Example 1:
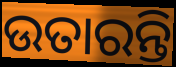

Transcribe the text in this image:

ଉତାରନ୍ତି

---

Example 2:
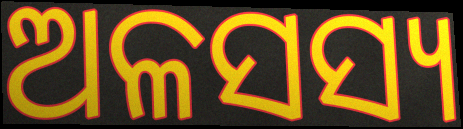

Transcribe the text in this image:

ଅଳସସ୍ୟ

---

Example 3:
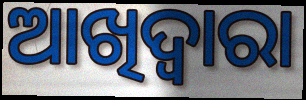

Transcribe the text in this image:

ଆଖିଦ୍ୱାରା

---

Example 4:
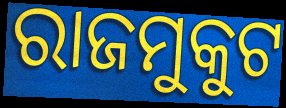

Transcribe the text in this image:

ରାଜମୁକୁଟ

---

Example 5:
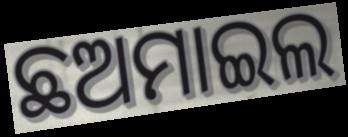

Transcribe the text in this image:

ଛଅମାଇଲ